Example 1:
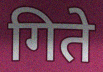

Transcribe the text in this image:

गिते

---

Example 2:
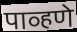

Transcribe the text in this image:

पाव्हणे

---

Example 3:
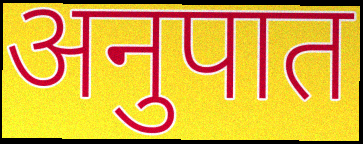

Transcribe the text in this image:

अनुपात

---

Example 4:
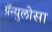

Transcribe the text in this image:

ग्रॅन्युलोसा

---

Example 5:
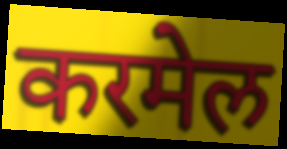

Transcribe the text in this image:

करमेल